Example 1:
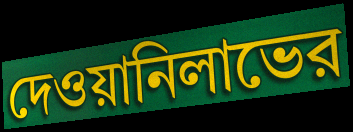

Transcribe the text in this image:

দেওয়ানিলাভের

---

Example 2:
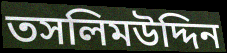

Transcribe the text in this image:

তসলিমউদ্দিন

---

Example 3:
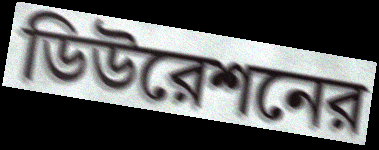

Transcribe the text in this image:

ডিউরেশনের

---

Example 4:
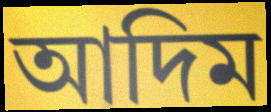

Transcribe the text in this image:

আদিম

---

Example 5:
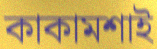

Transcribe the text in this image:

কাকামশাই